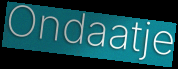
Ondaatje